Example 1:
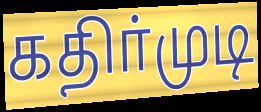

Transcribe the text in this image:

கதிர்முடி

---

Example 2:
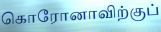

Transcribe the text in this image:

கொரோனாவிற்குப்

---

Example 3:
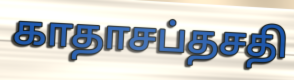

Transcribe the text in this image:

காதாசப்தசதி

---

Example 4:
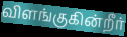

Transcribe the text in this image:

விளங்குகின்றீர்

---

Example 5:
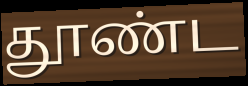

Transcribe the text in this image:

தூண்ட